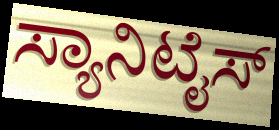
ಸ್ಯಾನಿಟೈಸ್